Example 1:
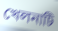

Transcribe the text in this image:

খেলনাটি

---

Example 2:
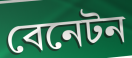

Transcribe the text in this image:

বেনেটন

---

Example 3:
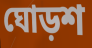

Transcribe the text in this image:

ঘোড়শ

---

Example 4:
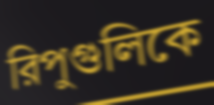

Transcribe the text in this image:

রিপুগুলিকে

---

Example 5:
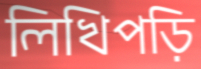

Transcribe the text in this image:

লিখিপড়ি